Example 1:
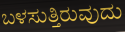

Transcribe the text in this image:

ಬಳಸುತ್ತಿರುವುದು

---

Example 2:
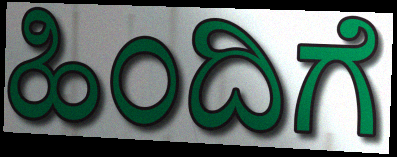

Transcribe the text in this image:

ಹಿಂದಿಗೆ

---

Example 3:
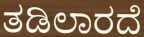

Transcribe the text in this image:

ತಡಿಲಾರದೆ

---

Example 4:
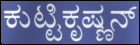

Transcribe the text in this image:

ಕುಟ್ಟಿಕೃಷ್ಣನ್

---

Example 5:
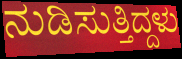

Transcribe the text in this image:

ನುಡಿಸುತ್ತಿದ್ದಳು